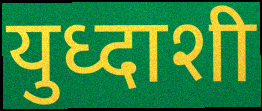
युध्दाशी